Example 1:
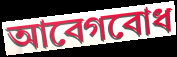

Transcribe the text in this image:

আবেগবোধ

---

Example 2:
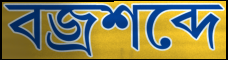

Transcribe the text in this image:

বজ্রশব্দে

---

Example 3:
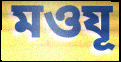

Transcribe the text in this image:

মওযূ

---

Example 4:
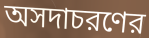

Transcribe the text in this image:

অসদাচরণের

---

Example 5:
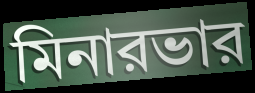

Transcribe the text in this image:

মিনারভার